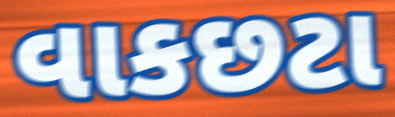
વાકછટા